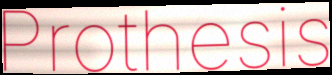
Prothesis